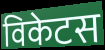
विकेटस